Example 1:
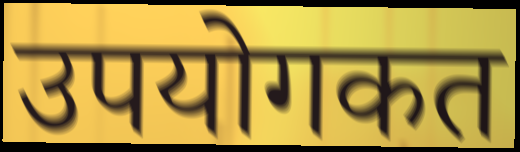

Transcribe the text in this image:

उपयोगकत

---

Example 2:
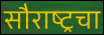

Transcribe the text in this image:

सौराष्ट्रचा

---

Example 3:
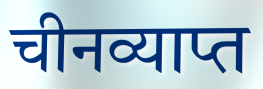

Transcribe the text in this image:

चीनव्याप्त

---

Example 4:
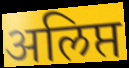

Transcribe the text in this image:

अलिप्त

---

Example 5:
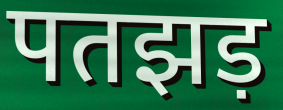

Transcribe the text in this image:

पतझड़